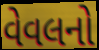
વેવલનો